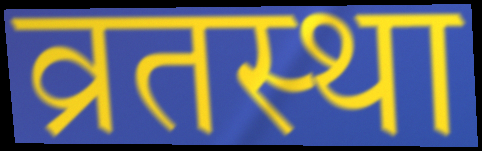
व्रतस्था